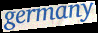
germany